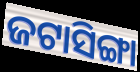
ଜଟାସିଙ୍ଗା